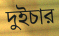
দুইচার